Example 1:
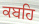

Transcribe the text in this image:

ਕਬਹਿ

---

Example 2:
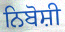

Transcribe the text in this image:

ਨਿਬੋਸ਼ੀ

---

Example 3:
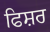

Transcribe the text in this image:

ਫਿਸ਼ਰ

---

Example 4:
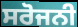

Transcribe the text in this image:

ਸਰੋਜਨੀ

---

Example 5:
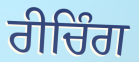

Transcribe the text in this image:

ਰੀਚਿੰਗ